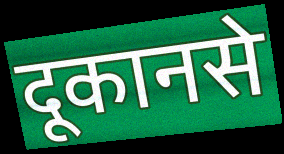
दूकानसे